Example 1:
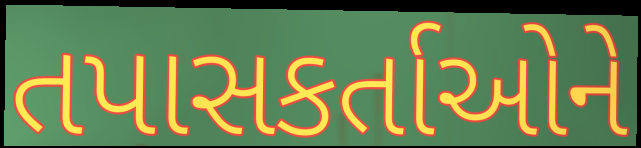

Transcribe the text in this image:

તપાસકર્તાઓને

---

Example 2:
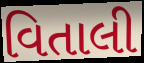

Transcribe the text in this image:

વિતાલી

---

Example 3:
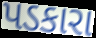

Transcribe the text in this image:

પડકારા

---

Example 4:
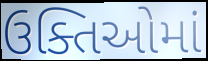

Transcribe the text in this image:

ઉક્તિઓમાં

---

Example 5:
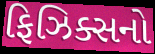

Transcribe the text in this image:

ફિઝિક્સનો